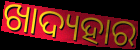
ଖାଦ୍ୟହାର